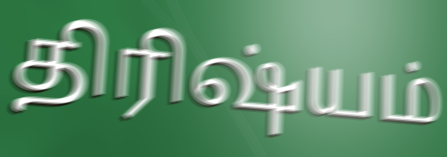
திரிஷ்யம்